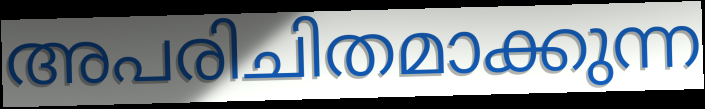
അപരിചിതമാക്കുന്ന